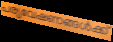
പര്യവേഷണങ്ങൾക്ക്